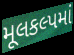
મૂલકલ્પમાં